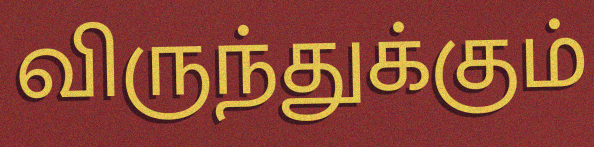
விருந்துக்கும்